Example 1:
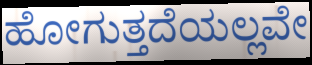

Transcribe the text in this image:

ಹೋಗುತ್ತದೆಯಲ್ಲವೇ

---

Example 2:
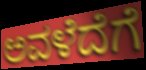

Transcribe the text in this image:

ಅವಳೆದೆಗೆ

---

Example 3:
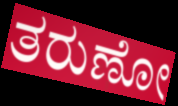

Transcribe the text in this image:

ತರುಣೋ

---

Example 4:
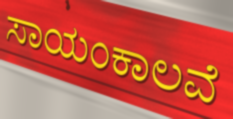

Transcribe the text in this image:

ಸಾಯಂಕಾಲವೆ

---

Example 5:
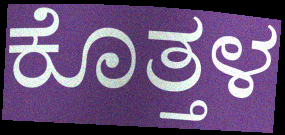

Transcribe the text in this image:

ಕೊತ್ತಳ